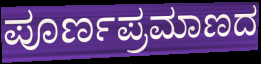
ಪೂರ್ಣಪ್ರಮಾಣದ